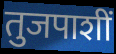
तुजपाशीं